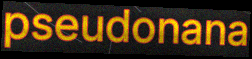
pseudonana